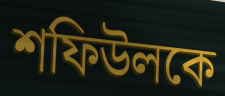
শফিউলকে